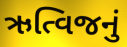
ઋત્વિજનું